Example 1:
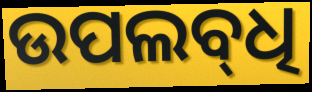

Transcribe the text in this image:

ଉପଲବ୍‌ଧି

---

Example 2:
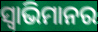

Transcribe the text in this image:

ସ୍ଵାଭିମାନର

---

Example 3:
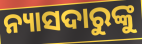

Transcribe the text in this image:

ନ୍ୟାସଦାରୁଙ୍କୁ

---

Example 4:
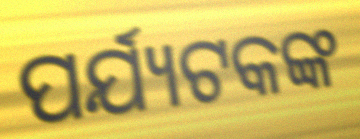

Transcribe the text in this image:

ପର୍ଯ୍ୟଟକଙ୍କ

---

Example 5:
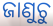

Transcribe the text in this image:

ଜାଣୁଚୁ